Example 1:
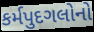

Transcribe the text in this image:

કર્મપુદગલોનો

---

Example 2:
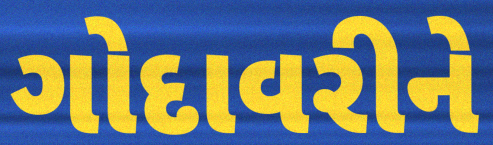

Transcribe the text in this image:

ગોદાવરીને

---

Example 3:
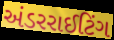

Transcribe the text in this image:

અંડરરાઈટિંગ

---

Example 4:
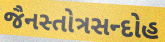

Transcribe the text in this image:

જૈનસ્તોત્રસન્દોહ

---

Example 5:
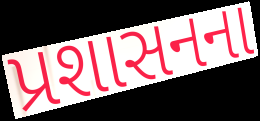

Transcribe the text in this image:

પ્રશાસનના